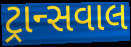
ટ્રાન્સવાલ